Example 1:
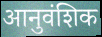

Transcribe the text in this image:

आनुवंशिक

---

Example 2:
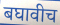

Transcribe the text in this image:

बघावीच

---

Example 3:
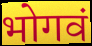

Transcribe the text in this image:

भोगवं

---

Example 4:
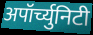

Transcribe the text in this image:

अपॉर्च्युनिटी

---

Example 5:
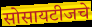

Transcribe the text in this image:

सोसायटीजचे